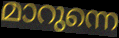
മാറുന്നെ